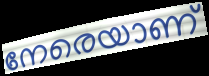
നേരെയാണ്